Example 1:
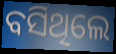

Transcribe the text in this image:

ବସିଥିଲେ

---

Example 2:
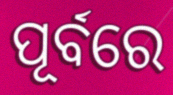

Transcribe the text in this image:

ପୂର୍ବରେ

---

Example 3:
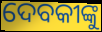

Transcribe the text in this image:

ଦେବକୀଙ୍କୁ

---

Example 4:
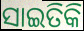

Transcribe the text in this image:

ସାଇତିକି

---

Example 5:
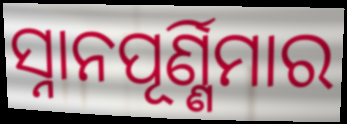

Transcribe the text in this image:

ସ୍ନାନପୂର୍ଣ୍ଣିମାର